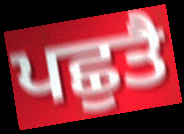
ਪਛੁਤੈ